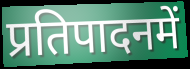
प्रतिपादनमें